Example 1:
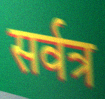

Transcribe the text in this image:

सर्वत्र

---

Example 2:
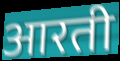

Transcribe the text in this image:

आरती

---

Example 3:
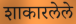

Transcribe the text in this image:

शाकारलेले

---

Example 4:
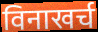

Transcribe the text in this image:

विनाखर्च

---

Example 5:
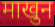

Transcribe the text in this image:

माखुन